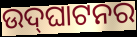
ଉଦ୍‍ଘାଟନର